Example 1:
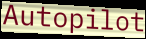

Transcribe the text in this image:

Autopilot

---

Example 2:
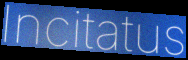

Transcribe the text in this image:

Incitatus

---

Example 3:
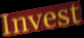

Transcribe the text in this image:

Invest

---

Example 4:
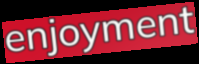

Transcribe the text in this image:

enjoyment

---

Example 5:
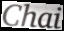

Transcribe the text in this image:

Chai